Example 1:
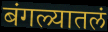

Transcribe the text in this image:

बंगल्यातलं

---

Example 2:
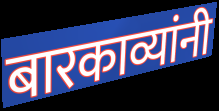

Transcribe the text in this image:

बारकाव्यांनी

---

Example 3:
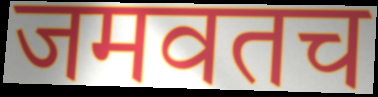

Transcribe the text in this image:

जमवतच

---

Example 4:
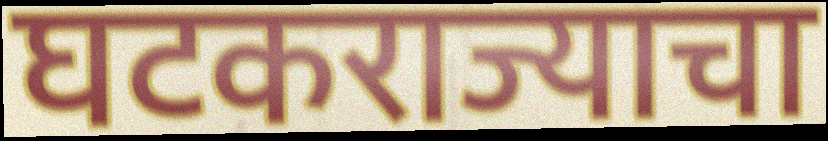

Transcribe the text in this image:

घटकराज्याचा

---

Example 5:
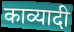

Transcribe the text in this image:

काव्यादी